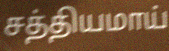
சத்தியமாய்